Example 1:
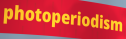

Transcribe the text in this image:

photoperiodism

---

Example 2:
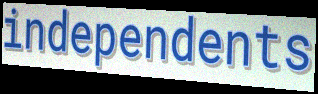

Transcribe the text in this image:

independents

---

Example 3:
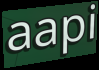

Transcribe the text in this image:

aapi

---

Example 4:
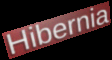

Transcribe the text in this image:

Hibernia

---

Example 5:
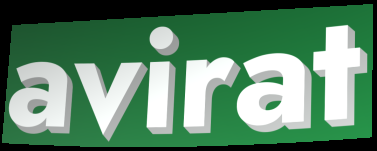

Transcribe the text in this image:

avirat